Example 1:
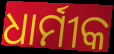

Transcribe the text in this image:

ଧାର୍ମୀକ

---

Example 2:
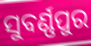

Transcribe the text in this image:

ସୁବର୍ଣ୍ଣପୁର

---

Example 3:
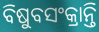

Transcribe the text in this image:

ବିଷୁବସଂକ୍ରାନ୍ତି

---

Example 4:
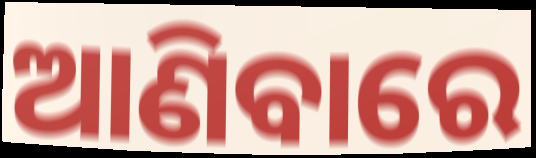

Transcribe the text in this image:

ଆଣିବାରେ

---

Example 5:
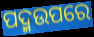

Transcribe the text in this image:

ପଦ୍ମଉପରେ